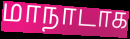
மாநாடாக